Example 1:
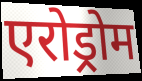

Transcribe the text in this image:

एरोड्रोम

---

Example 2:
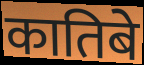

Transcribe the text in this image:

कातिबे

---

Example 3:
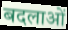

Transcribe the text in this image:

बदलाओं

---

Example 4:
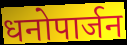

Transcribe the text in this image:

धनोपार्जन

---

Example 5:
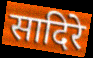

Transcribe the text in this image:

सादिरे